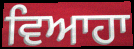
ਵਿਆਹਾ